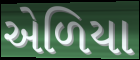
એળિયા